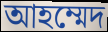
আহম্মেদ